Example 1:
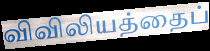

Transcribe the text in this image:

விவிலியத்தைப்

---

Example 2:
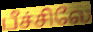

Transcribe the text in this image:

பீச்சிலே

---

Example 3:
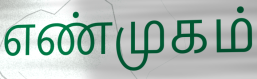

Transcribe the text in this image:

எண்முகம்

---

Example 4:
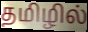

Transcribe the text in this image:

தமிழில்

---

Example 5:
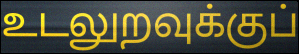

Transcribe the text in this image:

உடலுறவுக்குப்